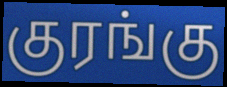
குரங்கு